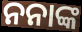
ନନାଙ୍କ